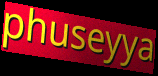
phuseyya